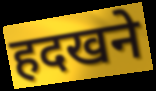
हदखने